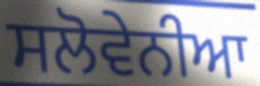
ਸਲੋਵੇਨੀਆ